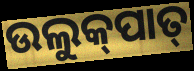
ଉଲୁକ୍‌ପାତ୍